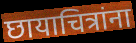
छायाचित्रांना